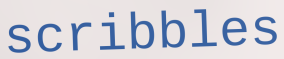
scribbles